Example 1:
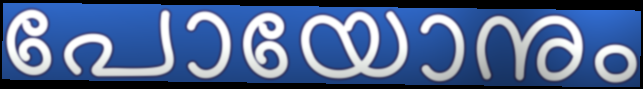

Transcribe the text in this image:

പോയോനും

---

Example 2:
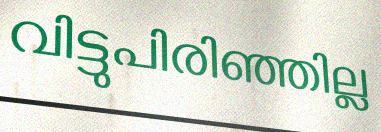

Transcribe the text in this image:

വിട്ടുപിരിഞ്ഞില്ല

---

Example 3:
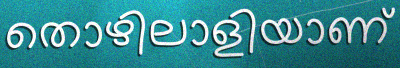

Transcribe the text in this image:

തൊഴിലാളിയാണ്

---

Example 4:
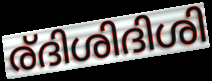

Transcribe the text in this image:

ര്ദിശിദിശി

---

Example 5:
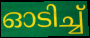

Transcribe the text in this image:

ഓടിച്ച്